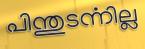
പിന്തുടൎന്നില്ല